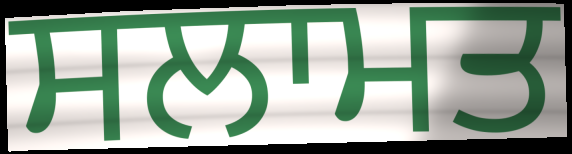
ਸਲਾਮਤ